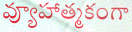
వ్యూహాత్మకంగా